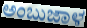
ಅಂಬುಜಾಳ